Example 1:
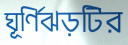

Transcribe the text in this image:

ঘূর্ণিঝড়টির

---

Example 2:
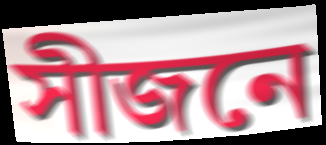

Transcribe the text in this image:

সীজনে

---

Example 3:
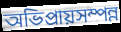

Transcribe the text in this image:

অভিপ্রায়সম্পন্ন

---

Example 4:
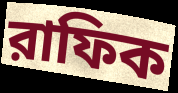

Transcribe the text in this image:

রাফিক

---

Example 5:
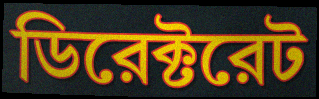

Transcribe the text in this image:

ডিরেক্টরেট